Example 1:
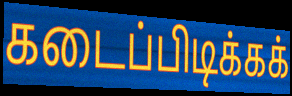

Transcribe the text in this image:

கடைப்பிடிக்கக்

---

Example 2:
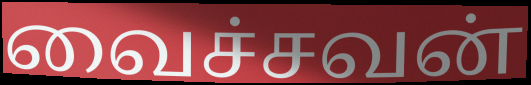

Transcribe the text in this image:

வைச்சவன்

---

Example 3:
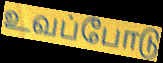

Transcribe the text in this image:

உவப்போடு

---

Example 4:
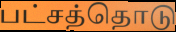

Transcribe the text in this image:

பட்சத்தொடு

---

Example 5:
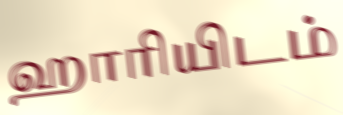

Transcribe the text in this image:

ஹாரியிடம்